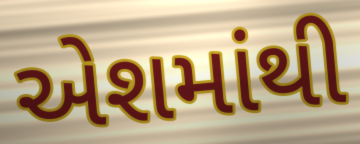
એશમાંથી